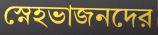
স্নেহভাজনদের